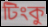
টিংকু